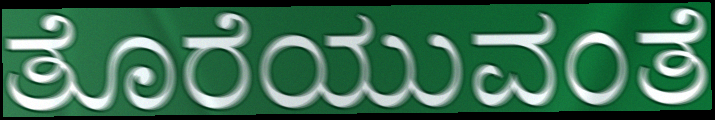
ತೊರೆಯುವಂತೆ